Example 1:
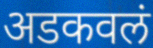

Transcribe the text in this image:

अडकवलं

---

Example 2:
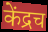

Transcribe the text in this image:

केंद्रच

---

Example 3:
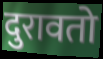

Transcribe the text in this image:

दुरावतो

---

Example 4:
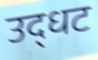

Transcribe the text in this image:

उद्धट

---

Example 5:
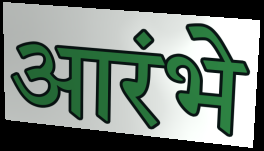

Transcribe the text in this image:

आरंभे